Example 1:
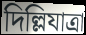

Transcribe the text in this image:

দিল্লিযাত্রা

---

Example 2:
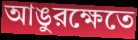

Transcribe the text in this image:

আঙুরক্ষেতে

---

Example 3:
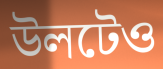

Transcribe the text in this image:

উলটেও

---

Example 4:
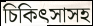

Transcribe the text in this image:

চিকিৎসাসহ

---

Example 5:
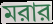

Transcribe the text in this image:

মরার